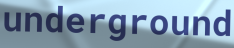
underground